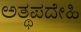
ಅತ್ಥಪದೇಹಿ